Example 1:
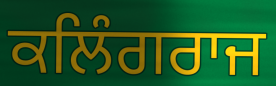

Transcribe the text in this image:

ਕਲਿੰਗਰਾਜ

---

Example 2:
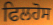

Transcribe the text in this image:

ਫਿਲਹੋਸ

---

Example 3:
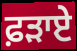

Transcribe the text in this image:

ਫ਼ੜਾਏ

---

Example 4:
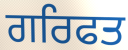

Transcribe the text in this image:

ਗਰਿਫਤ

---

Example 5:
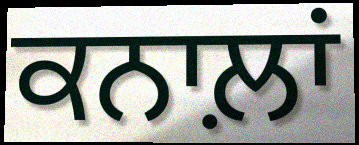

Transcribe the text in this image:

ਕਨਾਲ਼ਾਂ